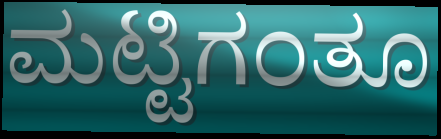
ಮಟ್ಟಿಗಂತೂ